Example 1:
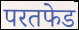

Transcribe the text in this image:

परतफेड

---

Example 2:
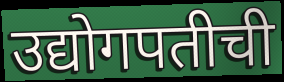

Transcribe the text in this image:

उद्योगपतीची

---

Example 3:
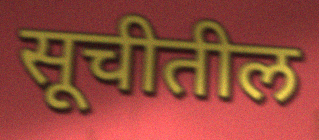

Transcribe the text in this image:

सूचीतील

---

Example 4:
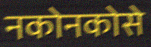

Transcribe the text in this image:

नकोनकोसे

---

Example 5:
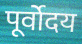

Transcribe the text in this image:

पूर्वोदय